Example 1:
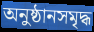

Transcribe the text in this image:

অনুষ্ঠানসমৃদ্ধ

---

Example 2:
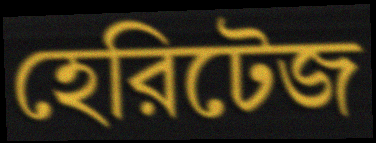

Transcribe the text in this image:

হেরিটেজ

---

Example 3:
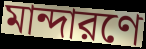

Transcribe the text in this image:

মান্দারণে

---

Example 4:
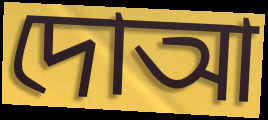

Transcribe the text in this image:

দোআ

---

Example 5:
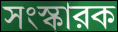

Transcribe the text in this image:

সংস্কারক